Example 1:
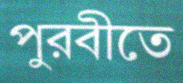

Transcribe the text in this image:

পুরবীতে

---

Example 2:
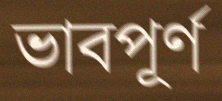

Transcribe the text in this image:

ভাবপূর্ণ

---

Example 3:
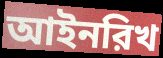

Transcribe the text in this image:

আইনরিখ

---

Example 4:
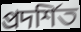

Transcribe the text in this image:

প্রদর্শিত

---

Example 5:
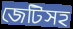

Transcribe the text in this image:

জেটিসহ